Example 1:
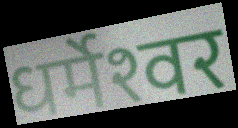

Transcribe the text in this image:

धर्मेश्वर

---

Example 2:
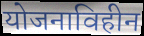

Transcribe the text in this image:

योजनाविहीन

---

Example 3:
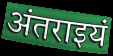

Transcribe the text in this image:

अंतराइयं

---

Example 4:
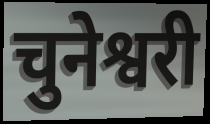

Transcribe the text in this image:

चुनेश्वरी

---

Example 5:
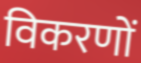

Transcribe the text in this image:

विकरणों